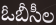
ఓబీసీల